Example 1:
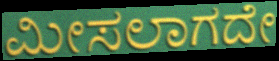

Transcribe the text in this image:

ಮೀಸಲಾಗದೇ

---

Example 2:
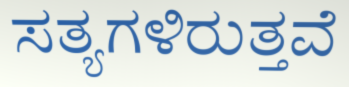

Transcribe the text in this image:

ಸತ್ಯಗಳಿರುತ್ತವೆ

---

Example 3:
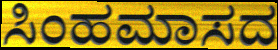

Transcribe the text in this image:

ಸಿಂಹಮಾಸದ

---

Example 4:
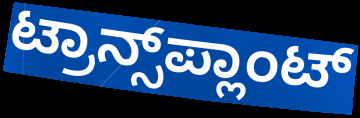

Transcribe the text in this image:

ಟ್ರಾನ್ಸ್‌ಪ್ಲಾಂಟ್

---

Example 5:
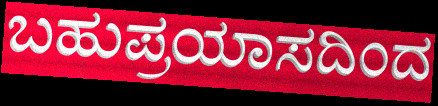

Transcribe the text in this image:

ಬಹುಪ್ರಯಾಸದಿಂದ